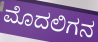
ಮೊದಲಿಗನ